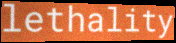
lethality